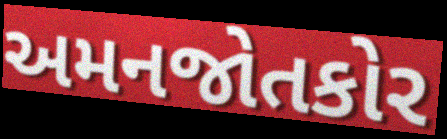
અમનજોતકોર